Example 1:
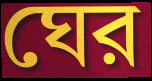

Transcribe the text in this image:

ঘের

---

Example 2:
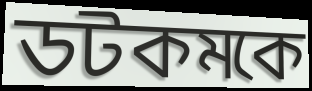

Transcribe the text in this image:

ডটকমকে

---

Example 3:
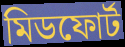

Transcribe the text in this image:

মিডফোর্ট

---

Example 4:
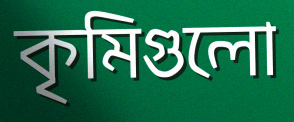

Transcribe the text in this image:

কৃমিগুলো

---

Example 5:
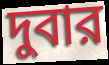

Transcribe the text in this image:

দুবার